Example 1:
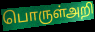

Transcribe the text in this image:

பொருள்அறி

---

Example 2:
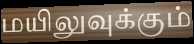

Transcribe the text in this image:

மயிலுவுக்கும்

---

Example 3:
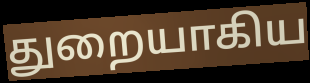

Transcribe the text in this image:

துறையாகிய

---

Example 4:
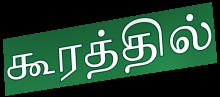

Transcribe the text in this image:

கூரத்தில்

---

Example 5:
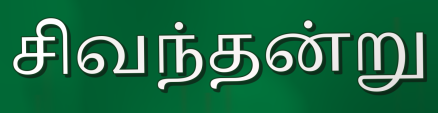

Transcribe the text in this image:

சிவந்தன்று